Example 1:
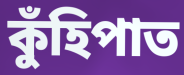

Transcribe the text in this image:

কুঁহিপাত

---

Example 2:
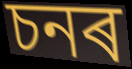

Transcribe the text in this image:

চনৰ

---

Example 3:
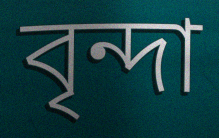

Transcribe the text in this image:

বৃন্দা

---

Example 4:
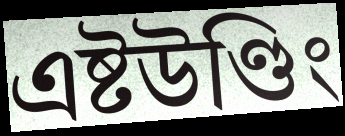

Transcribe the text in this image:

এষ্টউণ্ডিং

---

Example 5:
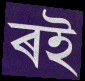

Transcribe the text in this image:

ৰই